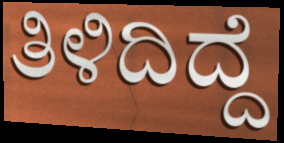
ತಿಳಿದಿದ್ದೆ